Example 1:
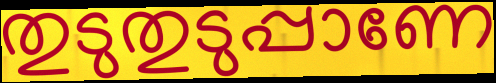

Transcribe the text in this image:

തുടുതുടുപ്പാണേ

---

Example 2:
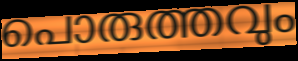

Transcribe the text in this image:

പൊരുത്തവും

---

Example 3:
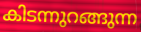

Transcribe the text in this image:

കിടന്നുറങ്ങുന്ന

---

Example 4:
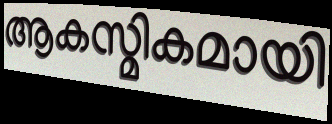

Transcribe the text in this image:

ആകസ്മികമായി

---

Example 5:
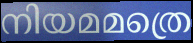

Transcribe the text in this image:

നിയമമത്രെ